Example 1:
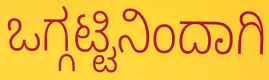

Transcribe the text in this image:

ಒಗ್ಗಟ್ಟಿನಿಂದಾಗಿ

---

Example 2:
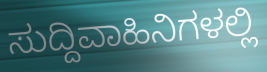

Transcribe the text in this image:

ಸುದ್ದಿವಾಹಿನಿಗಳಲ್ಲಿ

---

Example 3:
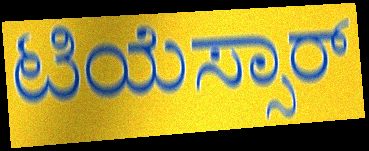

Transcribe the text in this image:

ಟಿಯೆಸ್ಸಾರ್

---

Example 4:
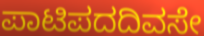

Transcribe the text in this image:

ಪಾಟಿಪದದಿವಸೇ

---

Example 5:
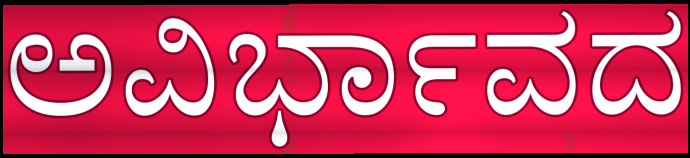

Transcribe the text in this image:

ಅವಿರ್ಭಾವದ